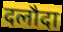
दलौदा